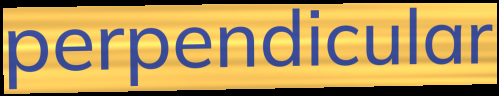
perpendicular